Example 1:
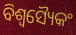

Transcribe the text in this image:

ବିଶ୍ୱସ୍ୟୈକଂ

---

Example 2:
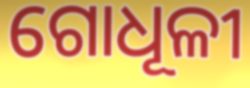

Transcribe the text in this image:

ଗୋଧୂଳୀ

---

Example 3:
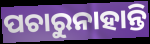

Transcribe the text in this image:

ପଚାରୁନାହାନ୍ତି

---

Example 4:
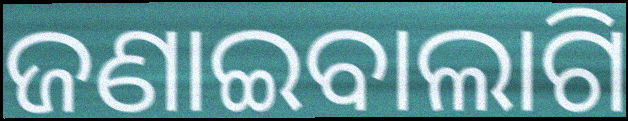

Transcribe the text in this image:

ଜଣାଇବାଲାଗି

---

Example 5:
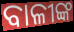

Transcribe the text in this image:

ବାଳୀଙ୍କ